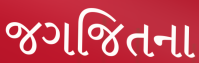
જગજિતના